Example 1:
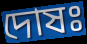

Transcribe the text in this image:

দোষঃ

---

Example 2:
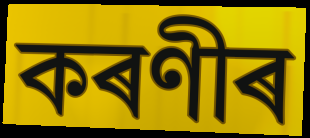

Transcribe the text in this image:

কৰণীৰ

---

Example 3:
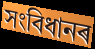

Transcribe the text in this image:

সংবিধানৰ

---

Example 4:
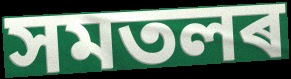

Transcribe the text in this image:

সমতলৰ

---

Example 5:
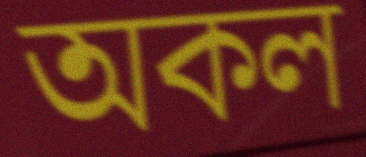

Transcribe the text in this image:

অকল